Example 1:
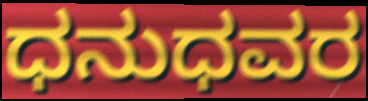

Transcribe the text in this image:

ಧನುಧವರ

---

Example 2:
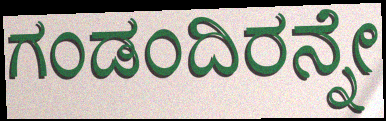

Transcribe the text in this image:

ಗಂಡಂದಿರನ್ನೇ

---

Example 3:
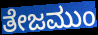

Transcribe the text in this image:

ತೇಜಮುಂ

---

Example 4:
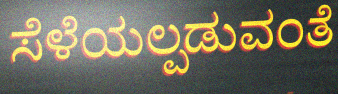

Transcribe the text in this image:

ಸೆಳೆಯಲ್ಪಡುವಂತೆ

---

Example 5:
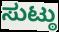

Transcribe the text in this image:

ಸುಟ್ಠು